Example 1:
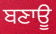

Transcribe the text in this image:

ਬਣਾਊ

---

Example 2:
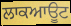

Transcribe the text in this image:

ਲਾਕਆਊਟ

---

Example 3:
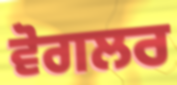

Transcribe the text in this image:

ਵੋਗਲਰ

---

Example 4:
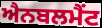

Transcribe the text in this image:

ਐਨਬਲਮੈਂਟ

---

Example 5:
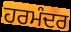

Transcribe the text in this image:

ਹਰਮੰਦਰ